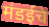
मंडईचे